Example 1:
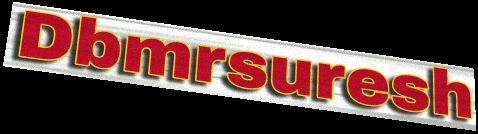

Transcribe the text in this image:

Dbmrsuresh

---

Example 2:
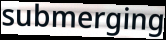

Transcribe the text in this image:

submerging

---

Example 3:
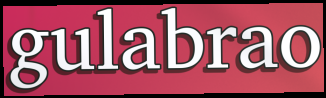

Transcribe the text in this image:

gulabrao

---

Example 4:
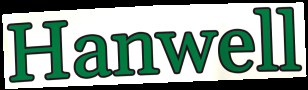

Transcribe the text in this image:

Hanwell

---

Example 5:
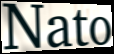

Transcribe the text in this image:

Nato